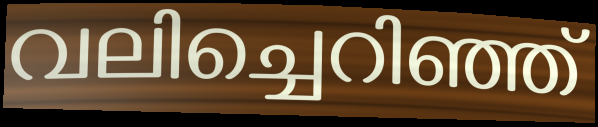
വലിച്ചെറിഞ്ഞ്